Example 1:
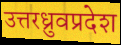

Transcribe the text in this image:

उत्तरध्रुवप्रदेश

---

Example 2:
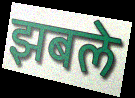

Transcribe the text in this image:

झबले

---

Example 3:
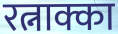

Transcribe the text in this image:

रत्नाक्का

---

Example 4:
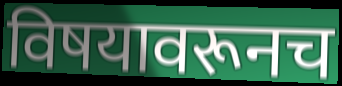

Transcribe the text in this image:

विषयावरूनच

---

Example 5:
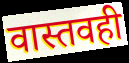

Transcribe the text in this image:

वास्तवही